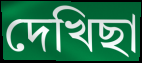
দেখিছা